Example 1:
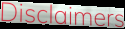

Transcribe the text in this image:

Disclaimers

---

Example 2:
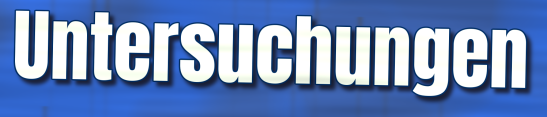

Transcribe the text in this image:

Untersuchungen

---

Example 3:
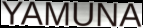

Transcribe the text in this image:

YAMUNA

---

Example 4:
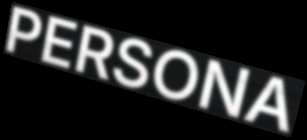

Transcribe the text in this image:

PERSONA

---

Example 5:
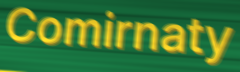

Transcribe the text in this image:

Comirnaty